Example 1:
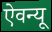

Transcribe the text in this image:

ऐवन्यू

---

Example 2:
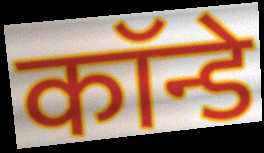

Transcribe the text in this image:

कॉन्डे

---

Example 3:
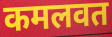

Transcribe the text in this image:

कमलवत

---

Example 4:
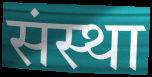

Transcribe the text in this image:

संस्‍था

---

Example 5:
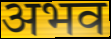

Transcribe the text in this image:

अभव